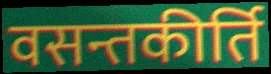
वसन्तकीर्ति